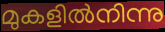
മുകളിൽനിന്നു